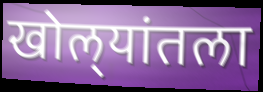
खोल्यांतला